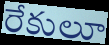
రేకులూ